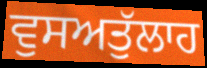
ਵੁਸਅਤੁੱਲਾਹ